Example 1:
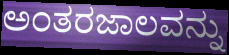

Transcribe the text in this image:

ಅಂತರಜಾಲವನ್ನು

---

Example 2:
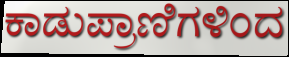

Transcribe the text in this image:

ಕಾಡುಪ್ರಾಣಿಗಳಿಂದ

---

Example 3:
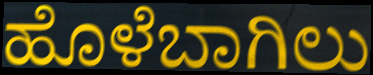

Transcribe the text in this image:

ಹೊಳೆಬಾಗಿಲು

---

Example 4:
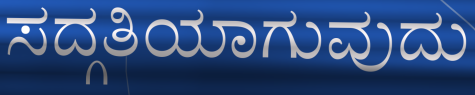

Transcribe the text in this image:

ಸದ್ಗತಿಯಾಗುವುದು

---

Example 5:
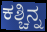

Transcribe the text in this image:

ಕಶ್ಚಿನ್ನ